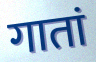
गातां